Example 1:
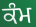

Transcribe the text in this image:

ਕੰਮ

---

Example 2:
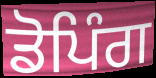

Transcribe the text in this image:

ਡੋਪਿੰਗ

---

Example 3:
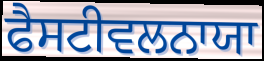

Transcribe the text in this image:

ਫੈਸਟੀਵਲਨਾਯਾ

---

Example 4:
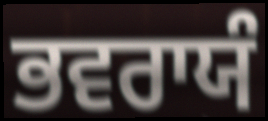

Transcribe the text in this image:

ਭਵਰਾਯੰ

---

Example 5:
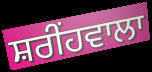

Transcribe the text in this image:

ਸ਼ਰੀਂਹਵਾਲਾ